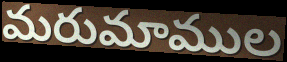
మరుమాముల